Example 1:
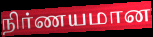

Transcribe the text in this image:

நிர்ணயமான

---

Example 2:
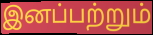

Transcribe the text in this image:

இனப்பற்றும்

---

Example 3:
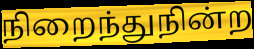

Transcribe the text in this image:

நிறைந்துநின்ற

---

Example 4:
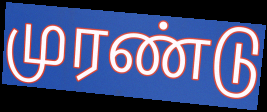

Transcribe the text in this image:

முரண்டு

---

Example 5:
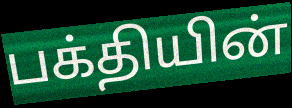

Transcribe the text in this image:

பக்தியின்